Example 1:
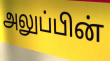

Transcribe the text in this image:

அலுப்பின்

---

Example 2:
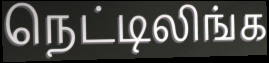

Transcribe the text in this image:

நெட்டிலிங்க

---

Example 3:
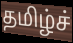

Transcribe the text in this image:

தமிழ்ச்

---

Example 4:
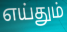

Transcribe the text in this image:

எய்தும்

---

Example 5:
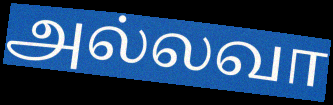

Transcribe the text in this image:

அல்லவா